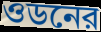
ওডনের